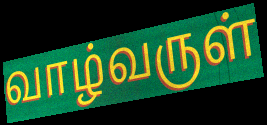
வாழ்வருள்